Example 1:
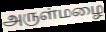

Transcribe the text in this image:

அருள்மழை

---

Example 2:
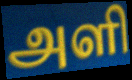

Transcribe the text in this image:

அளி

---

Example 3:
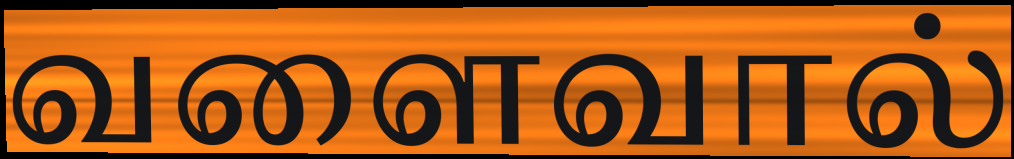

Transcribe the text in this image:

வளைவால்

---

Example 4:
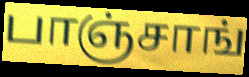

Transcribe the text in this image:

பாஞ்சாங்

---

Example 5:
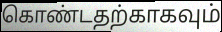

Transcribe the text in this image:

கொண்டதற்காகவும்